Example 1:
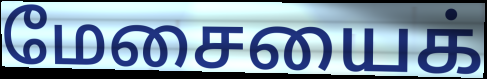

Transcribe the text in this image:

மேசையைக்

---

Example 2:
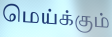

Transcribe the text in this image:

மெய்க்கும்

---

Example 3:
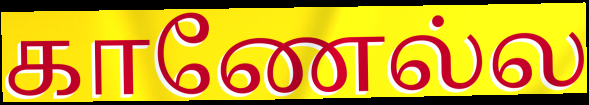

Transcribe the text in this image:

காணேல்ல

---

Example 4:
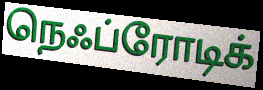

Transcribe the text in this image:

நெஃப்ரோடிக்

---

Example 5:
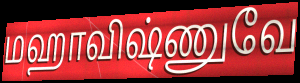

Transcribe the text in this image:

மஹாவிஷ்ணுவே